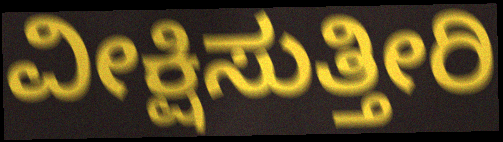
ವೀಕ್ಷಿಸುತ್ತೀರಿ